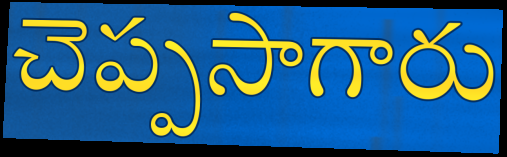
చెప్పసాగారు